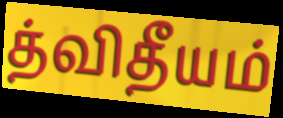
த்விதீயம்